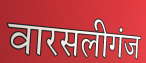
वारसलीगंज